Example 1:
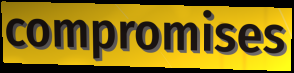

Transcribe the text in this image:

compromises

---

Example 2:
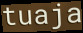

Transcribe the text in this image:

tuaja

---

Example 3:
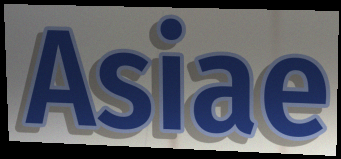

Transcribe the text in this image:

Asiae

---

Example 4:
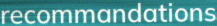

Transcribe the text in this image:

recommandations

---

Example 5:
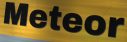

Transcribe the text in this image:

Meteor